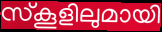
സ്കൂളിലുമായി